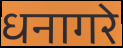
धनागरे